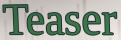
Teaser